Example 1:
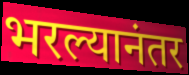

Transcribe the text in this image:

भरल्यानंतर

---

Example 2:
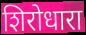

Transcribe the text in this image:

शिरोधारा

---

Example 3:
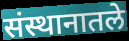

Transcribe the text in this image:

संस्थानातले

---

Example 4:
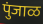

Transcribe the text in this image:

पुंजाळ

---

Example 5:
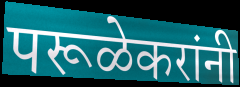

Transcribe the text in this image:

परूळेकरांनी